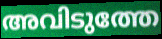
അവിടുത്തേ